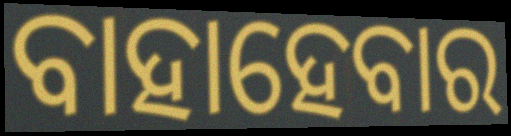
ବାହାହେବାର